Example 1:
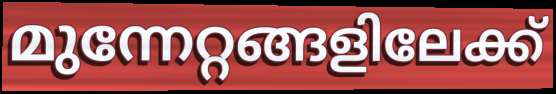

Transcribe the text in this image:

മുന്നേറ്റങ്ങളിലേക്ക്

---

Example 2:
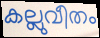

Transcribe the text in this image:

കല്ലുവീതം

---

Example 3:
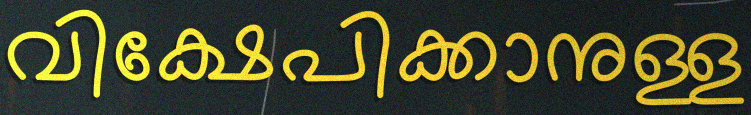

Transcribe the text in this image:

വിക്ഷേപിക്കാനുള്ള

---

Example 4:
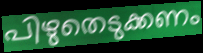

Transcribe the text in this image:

പിഴുതെടുക്കണം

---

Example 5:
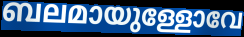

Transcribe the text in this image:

ബലമായുള്ളോവേ